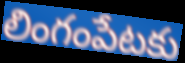
లింగంపేటకు